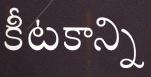
కీటకాన్ని